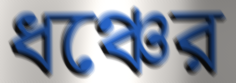
ধঞ্চের